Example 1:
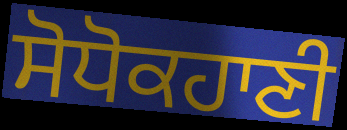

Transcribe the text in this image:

ਸੋਧੋਕਹਾਣੀ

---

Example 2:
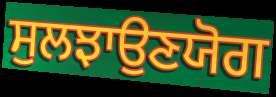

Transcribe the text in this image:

ਸੁਲਝਾਉਣਯੋਗ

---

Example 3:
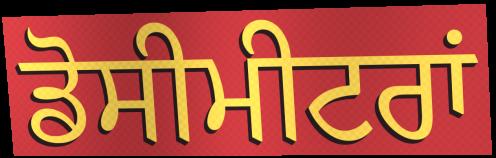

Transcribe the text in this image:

ਡੋਸੀਮੀਟਰਾਂ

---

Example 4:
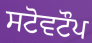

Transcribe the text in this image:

ਸਟੋਵਟੌਪ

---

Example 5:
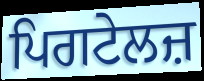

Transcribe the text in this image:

ਪਿਗਟੇਲਜ਼